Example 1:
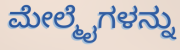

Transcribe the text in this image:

ಮೇಲ್ಮೈಗಳನ್ನು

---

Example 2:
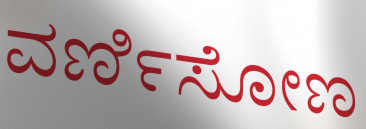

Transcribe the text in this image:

ವರ್ಣಿಸೋಣ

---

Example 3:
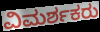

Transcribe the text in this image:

ವಿಮರ್ಶಕರು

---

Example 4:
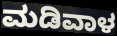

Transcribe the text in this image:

ಮಡಿವಾಳ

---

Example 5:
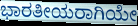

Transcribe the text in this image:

ಭಾರತೀಯರಾಗಿಯೇ